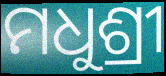
ମଧୁଶ୍ରୀ